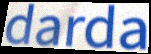
darda